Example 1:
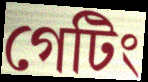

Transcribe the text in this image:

গেটিং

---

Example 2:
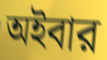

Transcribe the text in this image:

অইবার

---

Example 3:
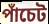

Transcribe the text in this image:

পাঁচেট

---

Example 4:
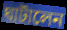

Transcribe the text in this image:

ঘাটালেন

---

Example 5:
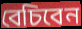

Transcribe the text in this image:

বেচিবেন